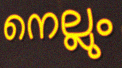
നെല്ലും